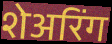
शेअरिंग